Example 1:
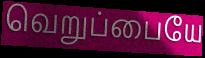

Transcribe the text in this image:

வெறுப்பையே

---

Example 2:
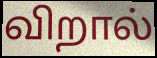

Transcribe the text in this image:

விறால்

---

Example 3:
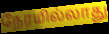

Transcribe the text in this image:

நேரமில்லாது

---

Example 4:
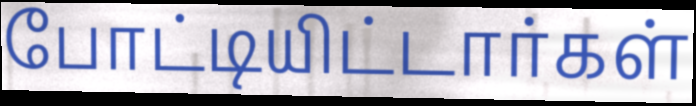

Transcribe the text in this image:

போட்டியிட்டார்கள்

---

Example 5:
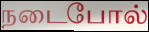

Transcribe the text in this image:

நடைபோல்